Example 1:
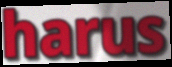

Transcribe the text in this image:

harus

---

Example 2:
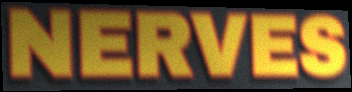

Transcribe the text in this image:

NERVES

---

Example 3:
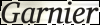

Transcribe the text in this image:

Garnier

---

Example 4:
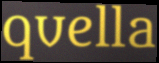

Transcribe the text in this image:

quella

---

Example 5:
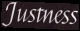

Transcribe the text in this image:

Justness